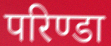
परिण्डा